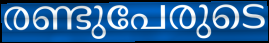
രണ്ടുപേരുടെ